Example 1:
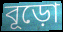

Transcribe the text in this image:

বূড়ো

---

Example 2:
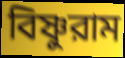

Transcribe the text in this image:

বিষ্ণুরাম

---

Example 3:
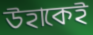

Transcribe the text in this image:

উহাকেই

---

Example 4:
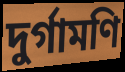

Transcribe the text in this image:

দুর্গামণি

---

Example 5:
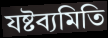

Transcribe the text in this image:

যষ্টব্যমিতি